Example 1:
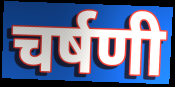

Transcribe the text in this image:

चर्षणी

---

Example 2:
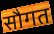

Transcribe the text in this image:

सौगत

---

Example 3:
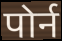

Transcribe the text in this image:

पोर्न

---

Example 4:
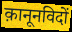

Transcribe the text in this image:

क़ानूनविदों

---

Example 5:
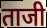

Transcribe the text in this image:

ताजी